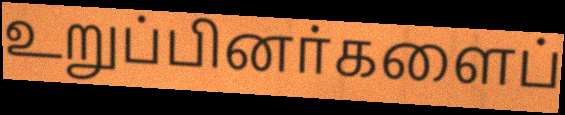
உறுப்பினர்களைப்